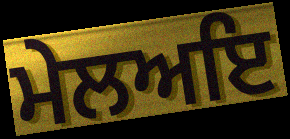
ਮੇਲਅਇ